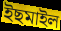
ইছমাইল